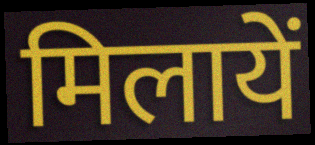
मिलायें